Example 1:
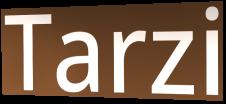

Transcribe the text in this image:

Tarzi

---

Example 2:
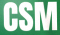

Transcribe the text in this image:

CSM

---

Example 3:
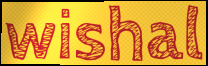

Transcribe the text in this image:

wishal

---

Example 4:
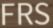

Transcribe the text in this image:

FRS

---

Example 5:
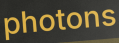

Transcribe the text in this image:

photons